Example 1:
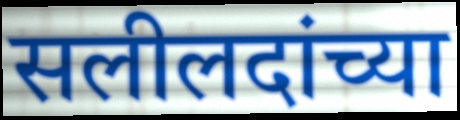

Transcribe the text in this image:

सलीलदांच्या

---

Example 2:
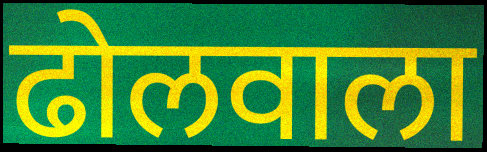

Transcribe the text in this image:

ढोलवाला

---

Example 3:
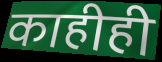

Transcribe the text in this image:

काहीही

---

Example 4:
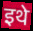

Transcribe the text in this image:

इथे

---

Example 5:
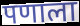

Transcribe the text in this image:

पणाला